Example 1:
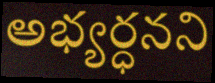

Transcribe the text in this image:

అభ్యర్ధనని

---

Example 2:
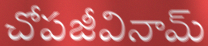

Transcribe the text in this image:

చోపజీవినామ్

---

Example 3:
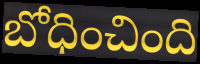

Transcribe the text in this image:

బోధించింది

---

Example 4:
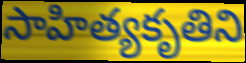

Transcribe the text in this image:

సాహిత్యకృతిని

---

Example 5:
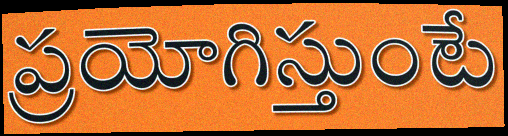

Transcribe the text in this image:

ప్రయోగిస్తుంటే